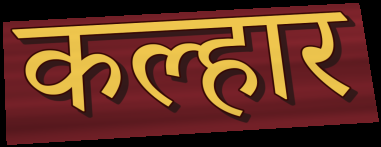
कल्हार